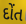
દોંત